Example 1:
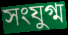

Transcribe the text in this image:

সংযুগ্ম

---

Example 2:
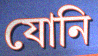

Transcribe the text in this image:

যোনি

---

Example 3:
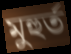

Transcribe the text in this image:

মুহুৰ্ত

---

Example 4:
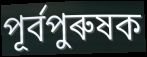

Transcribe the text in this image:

পূৰ্বপুৰুষক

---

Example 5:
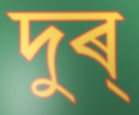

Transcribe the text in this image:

দুৰ্